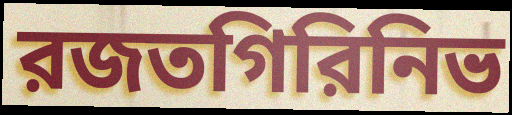
রজতগিরিনিভ